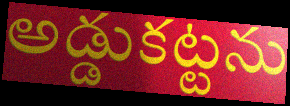
అడ్డుకట్టను